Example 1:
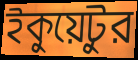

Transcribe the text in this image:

ইকুয়েটুর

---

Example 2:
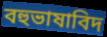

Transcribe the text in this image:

বহুভাষাবিদ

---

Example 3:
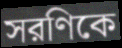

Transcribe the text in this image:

সরণিকে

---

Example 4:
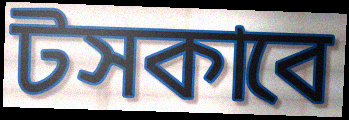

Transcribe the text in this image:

টসকাবে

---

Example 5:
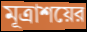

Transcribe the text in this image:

মূত্রাশয়ের